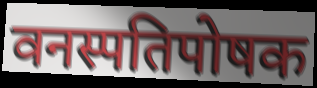
वनस्पतिपोषक